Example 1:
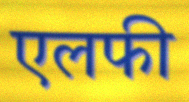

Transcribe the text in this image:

एलफी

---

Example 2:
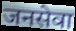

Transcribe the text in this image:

जनसेवा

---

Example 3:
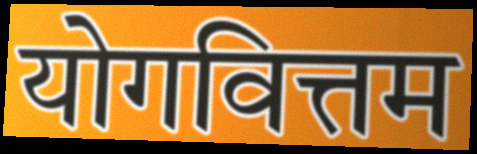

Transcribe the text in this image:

योगवित्तम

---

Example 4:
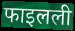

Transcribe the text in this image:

फाइलली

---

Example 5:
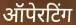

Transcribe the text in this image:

ऑपेरटिंग